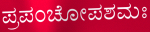
ಪ್ರಪಂಚೋಪಶಮಃ